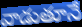
వాడుతూనే